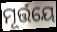
ମୂର୍ତ୍ତୟେ